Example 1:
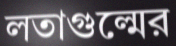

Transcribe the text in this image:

লতাগুল্মের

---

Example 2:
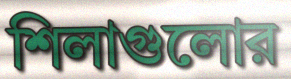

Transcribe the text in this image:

শিলাগুলোর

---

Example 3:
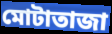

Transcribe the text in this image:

মোটাতাজা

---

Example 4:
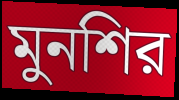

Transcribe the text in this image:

মুনশির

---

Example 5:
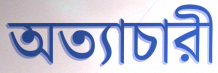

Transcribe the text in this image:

অত্যাচারী